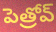
పెత్రోవ్